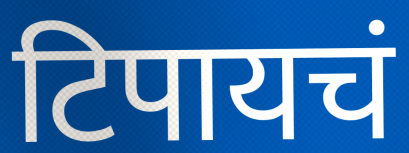
टिपायचं